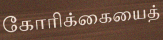
கோரிக்கையைத்